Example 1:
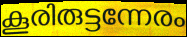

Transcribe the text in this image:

കൂരിരുട്ടന്നേരം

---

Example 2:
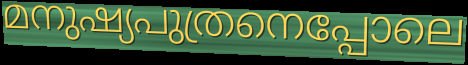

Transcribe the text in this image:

മനുഷ്യപുത്രനെപ്പോലെ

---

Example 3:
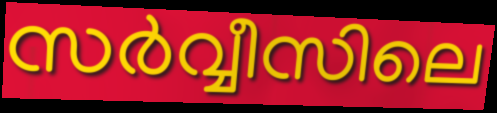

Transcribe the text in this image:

സർവ്വീസിലെ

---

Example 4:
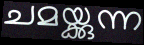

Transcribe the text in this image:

ചമയ്ക്കുന്ന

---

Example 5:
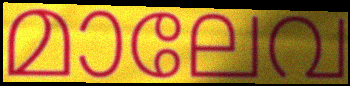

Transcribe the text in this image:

മാലേവ